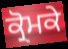
ਕ੍ਰੋਮਕੇ